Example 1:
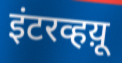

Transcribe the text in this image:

इंटरव्हय़ू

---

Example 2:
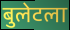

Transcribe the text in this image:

बुलेटला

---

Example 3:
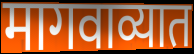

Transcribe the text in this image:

मागवाव्यात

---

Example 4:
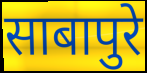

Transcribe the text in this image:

साबापुरे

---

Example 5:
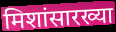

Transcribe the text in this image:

मिशांसारख्या